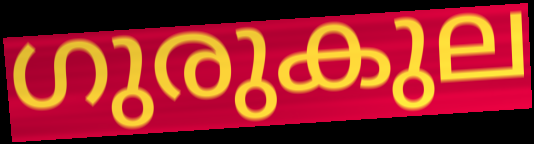
ഗുരുകുല